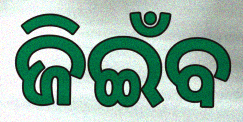
ଜିଇଁବ